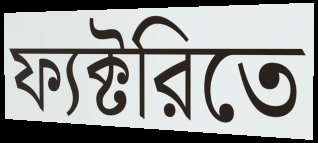
ফ্যক্টরিতে